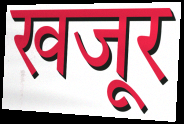
खजूर